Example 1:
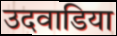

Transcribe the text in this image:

उदवाडिया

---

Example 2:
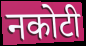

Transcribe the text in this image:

नकोटी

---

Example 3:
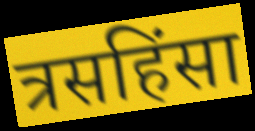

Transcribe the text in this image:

त्रसहिंसा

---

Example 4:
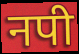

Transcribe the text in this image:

नपी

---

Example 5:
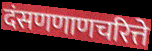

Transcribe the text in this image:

दंसणणाणचरित्ते